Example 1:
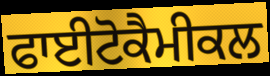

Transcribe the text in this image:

ਫਾਈਟੋਕੈਮੀਕਲ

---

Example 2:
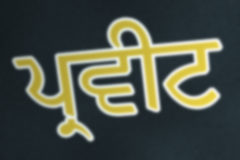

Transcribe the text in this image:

ਪ੍ਰਵੀਟ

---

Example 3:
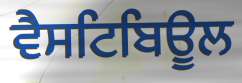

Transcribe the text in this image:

ਵੈਸਟਿਬਿਊਲ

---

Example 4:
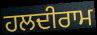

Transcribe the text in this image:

ਹਲਦੀਰਾਮ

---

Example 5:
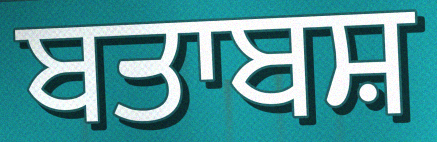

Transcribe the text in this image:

ਬਤਾਬਸ਼